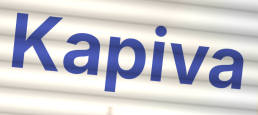
Kapiva